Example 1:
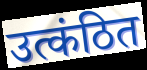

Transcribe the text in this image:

उत्कंठित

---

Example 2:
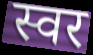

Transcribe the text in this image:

स्वर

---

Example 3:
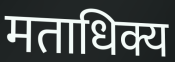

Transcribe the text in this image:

मताधिक्य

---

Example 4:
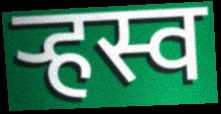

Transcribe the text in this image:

ऱ्हस्व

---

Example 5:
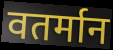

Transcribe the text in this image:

वतर्मान